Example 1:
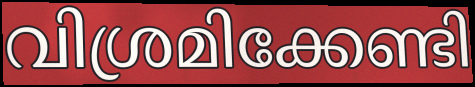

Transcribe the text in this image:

വിശ്രമിക്കേണ്ടി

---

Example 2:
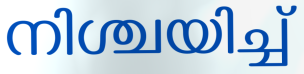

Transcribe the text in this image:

നിശ്ചയിച്ച്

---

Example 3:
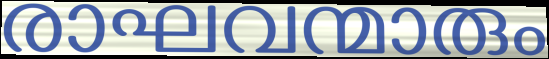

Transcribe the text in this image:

രാഘവന്മാരും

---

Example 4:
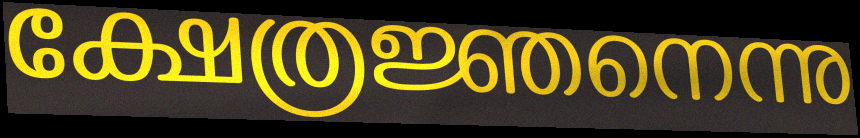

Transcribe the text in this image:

ക്ഷേത്രജ്ഞനെന്നു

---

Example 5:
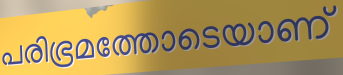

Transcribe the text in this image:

പരിഭ്രമത്തോടെയാണ്